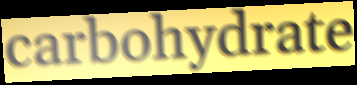
carbohydrate